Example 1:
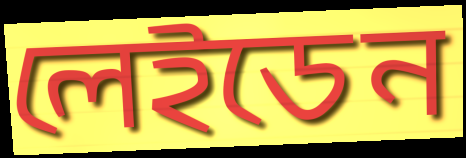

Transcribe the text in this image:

লেইডেন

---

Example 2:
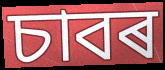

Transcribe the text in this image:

চাবৰ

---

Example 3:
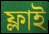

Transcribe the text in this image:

ফ্লাই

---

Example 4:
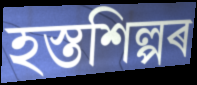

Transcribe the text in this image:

হস্তশিল্পৰ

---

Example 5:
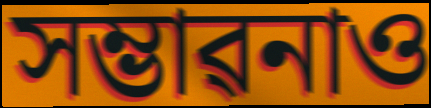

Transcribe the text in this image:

সম্ভাৱনাও